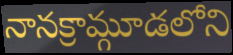
నానక్రామ్గూడలోని